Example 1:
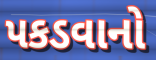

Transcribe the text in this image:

પકડવાનો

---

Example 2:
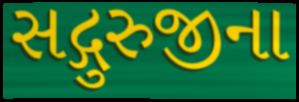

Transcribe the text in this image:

સદ્ગુરુજીના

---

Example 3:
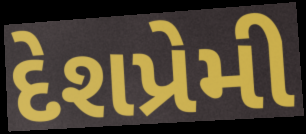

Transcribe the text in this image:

દેશપ્રેમી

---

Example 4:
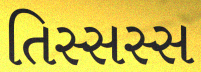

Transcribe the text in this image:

તિસ્સસ્સ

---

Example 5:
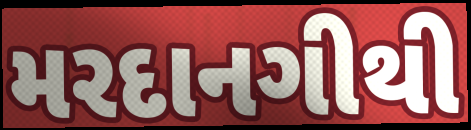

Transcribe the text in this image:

મરદાનગીથી